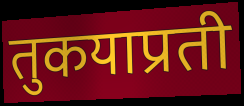
तुकयाप्रती